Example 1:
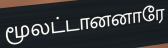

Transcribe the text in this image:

மூலட்டானனாரே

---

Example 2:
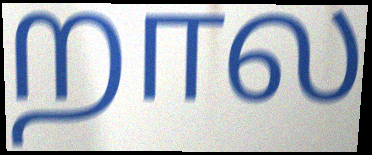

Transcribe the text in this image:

றால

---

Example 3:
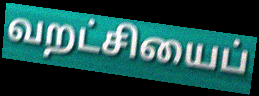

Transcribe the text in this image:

வறட்சியைப்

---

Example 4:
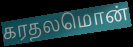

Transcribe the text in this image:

கரதலமொன்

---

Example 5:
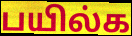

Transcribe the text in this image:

பயில்க